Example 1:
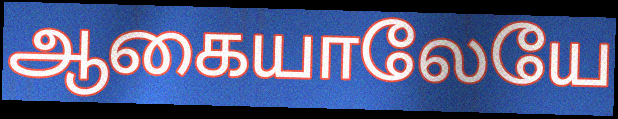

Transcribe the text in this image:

ஆகையாலேயே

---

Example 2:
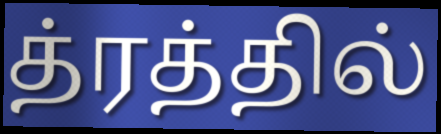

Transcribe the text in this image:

த்ரத்தில்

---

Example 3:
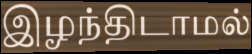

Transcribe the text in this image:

இழந்திடாமல்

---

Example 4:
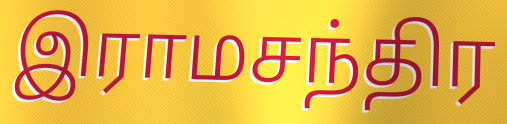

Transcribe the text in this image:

இராமசந்திர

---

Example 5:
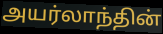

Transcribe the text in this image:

அயர்லாந்தின்